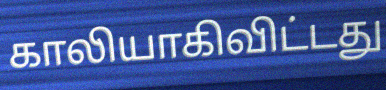
காலியாகிவிட்டது